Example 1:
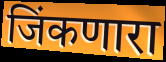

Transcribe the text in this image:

जिंकणारा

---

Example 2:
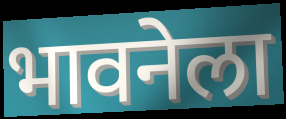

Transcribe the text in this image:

भावनेला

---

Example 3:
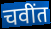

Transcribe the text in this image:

चवींत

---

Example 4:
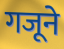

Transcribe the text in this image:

गजूने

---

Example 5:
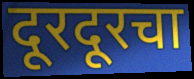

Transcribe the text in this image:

दूरदूरचा